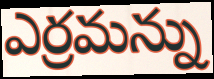
ఎర్రమన్ను